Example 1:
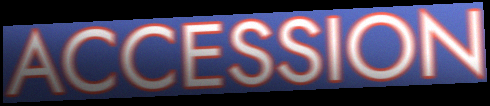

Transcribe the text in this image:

ACCESSION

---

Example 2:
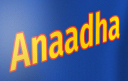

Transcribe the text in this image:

Anaadha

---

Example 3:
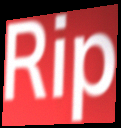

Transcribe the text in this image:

Rip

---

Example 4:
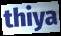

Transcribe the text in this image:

thiya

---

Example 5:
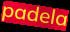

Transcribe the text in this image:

padela